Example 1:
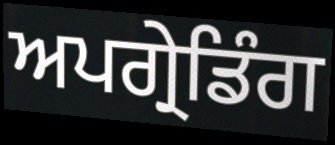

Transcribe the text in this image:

ਅਪਗ੍ਰੇਡਿੰਗ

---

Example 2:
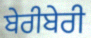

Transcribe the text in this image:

ਬੇਰੀਬੇਰੀ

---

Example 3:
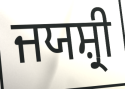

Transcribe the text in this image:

ਜਯਸ਼੍ਰੀ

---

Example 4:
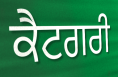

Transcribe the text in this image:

ਕੈਟਗਰੀ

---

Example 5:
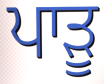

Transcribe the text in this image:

ਪਾੜੂ